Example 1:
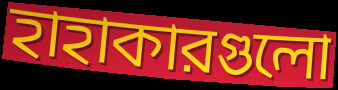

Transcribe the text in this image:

হাহাকারগুলো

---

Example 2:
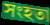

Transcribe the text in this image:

সংহতা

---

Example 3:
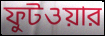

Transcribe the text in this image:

ফুটওয়ার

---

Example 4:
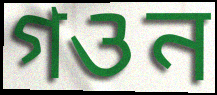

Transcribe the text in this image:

গওন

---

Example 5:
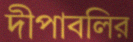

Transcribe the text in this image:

দীপাবলির